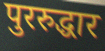
पुररुद्धार